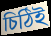
চিঠিই